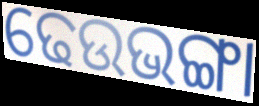
ଢେଉଭଙ୍ଗା